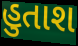
હુતાશ